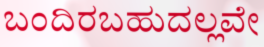
ಬಂದಿರಬಹುದಲ್ಲವೇ